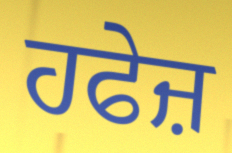
ਹਫੇਜ਼